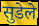
सुडेले